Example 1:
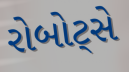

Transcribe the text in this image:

રોબોટ્સે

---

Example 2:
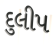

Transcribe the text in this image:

દુલીપ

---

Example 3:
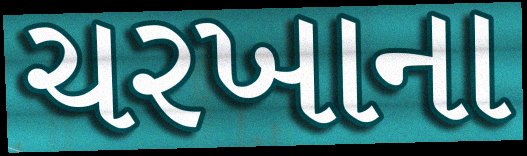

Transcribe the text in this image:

ચરખાના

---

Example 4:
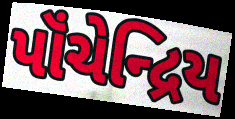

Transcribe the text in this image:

પૉંચેન્દ્રિય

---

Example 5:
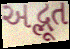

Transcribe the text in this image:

અદ્ભૂત